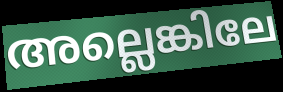
അല്ലെങ്കിലേ